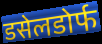
डसेलडोर्फ